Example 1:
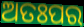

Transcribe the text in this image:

ଅତଃପର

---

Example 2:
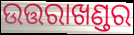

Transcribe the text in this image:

ଉତ୍ତରାଖଣ୍ଡର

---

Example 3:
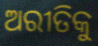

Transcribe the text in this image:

ଅରୀତିକୁ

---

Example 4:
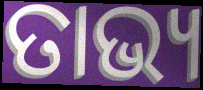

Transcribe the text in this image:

ତାଭ୍ୟ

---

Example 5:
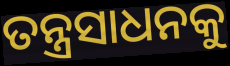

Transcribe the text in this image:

ତନ୍ତ୍ରସାଧନକୁ